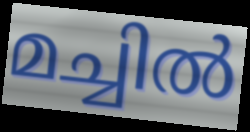
മച്ചിൽ